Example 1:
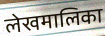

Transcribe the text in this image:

लेखमालिका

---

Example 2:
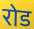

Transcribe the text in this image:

रोड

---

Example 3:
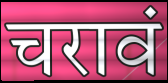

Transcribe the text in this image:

चरावं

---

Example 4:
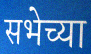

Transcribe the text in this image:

सभेच्या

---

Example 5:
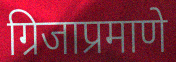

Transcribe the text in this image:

ग्रिजाप्रमाणे